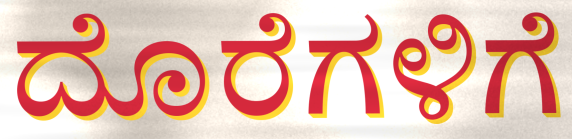
ದೊರೆಗಳಿಗೆ